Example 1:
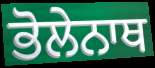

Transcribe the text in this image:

ਭੋਲੇਨਾਥ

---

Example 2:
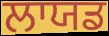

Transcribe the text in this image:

ਲਾਯਡ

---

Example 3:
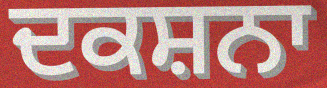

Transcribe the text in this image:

ਦਕਸ਼ਨਾ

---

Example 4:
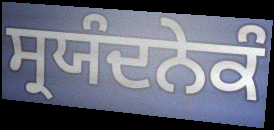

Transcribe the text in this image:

ਸ੍ਰਯੰਦਨੇਕੰ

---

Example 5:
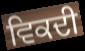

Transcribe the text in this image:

ਵਿਕਦੀ